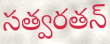
సత్వరతన్